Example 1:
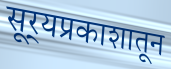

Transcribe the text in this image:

सूर्यप्रकाशातून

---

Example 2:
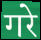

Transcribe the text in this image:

गरे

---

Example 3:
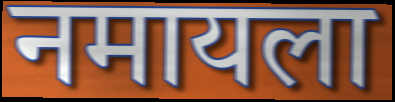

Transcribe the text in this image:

नमायला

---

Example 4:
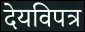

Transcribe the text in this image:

देयविपत्र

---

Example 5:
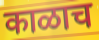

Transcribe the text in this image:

काळाच